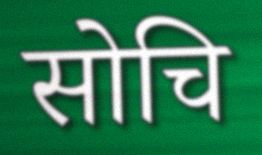
सोचि